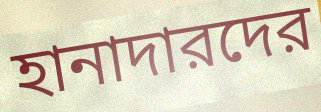
হানাদারদের